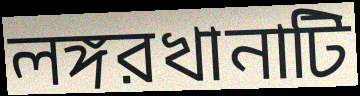
লঙ্গরখানাটি